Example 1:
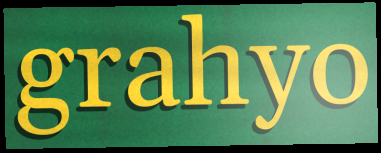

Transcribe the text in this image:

grahyo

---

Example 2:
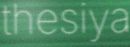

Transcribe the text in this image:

thesiya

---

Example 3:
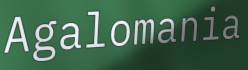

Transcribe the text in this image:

Agalomania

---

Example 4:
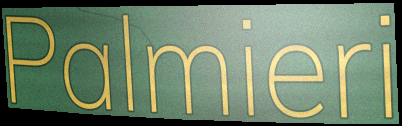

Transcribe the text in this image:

Palmieri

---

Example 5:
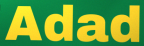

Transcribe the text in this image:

Adad